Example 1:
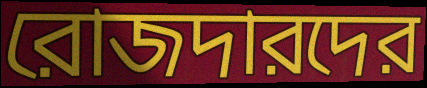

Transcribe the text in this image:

রোজদারদের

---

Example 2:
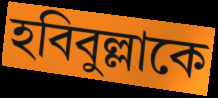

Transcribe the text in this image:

হবিবুল্লাকে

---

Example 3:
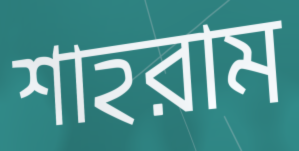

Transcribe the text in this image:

শাহরাম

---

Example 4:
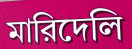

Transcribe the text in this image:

মারিদেলি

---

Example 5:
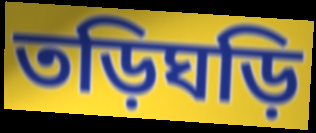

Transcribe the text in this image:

তড়িঘড়ি